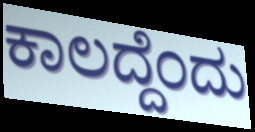
ಕಾಲದ್ದೆಂದು